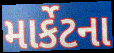
માર્કેટના